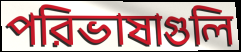
পরিভাষাগুলি